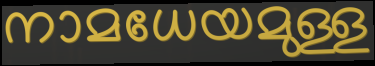
നാമധേയമുള്ള